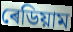
ৰেডিয়াম